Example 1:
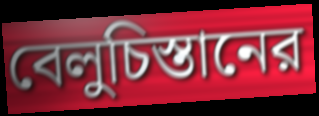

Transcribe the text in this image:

বেলুচিস্তানের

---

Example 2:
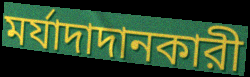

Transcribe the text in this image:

মর্যাদাদানকারী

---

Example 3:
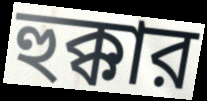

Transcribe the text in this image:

হুক্কার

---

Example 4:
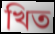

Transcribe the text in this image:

খিত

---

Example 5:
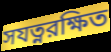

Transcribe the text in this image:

সযত্নরক্ষিত